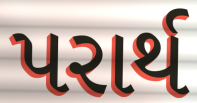
પરાર્થ